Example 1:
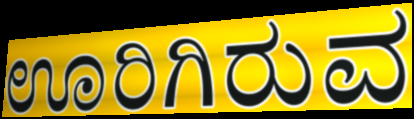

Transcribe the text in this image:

ಊರಿಗಿರುವ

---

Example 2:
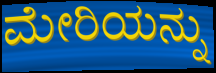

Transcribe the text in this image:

ಮೇರಿಯನ್ನು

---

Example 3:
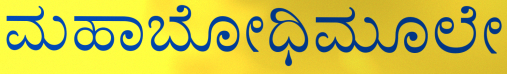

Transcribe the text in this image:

ಮಹಾಬೋಧಿಮೂಲೇ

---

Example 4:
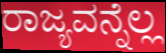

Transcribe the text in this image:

ರಾಜ್ಯವನ್ನೆಲ್ಲ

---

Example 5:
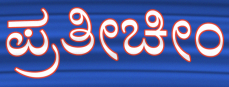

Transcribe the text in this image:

ಪ್ರತೀಚೀಂ